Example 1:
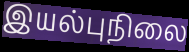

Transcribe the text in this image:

இயல்புநிலை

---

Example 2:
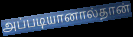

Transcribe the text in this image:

அப்படியானால்தான்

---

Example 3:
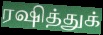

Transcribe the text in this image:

ரஷித்துக்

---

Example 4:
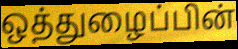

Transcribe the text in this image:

ஒத்துழைப்பின்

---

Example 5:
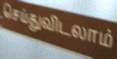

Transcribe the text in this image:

செய்துவிடலாம்